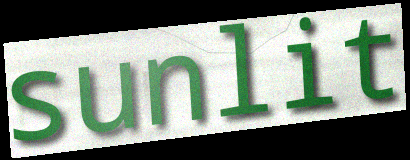
sunlit